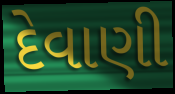
દેવાણી